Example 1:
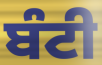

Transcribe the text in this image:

ਬੰਟੀ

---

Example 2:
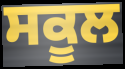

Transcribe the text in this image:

ਸਕੂਲ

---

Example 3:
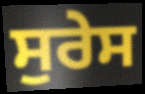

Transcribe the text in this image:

ਸੁਰੇਸ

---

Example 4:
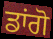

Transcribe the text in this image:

ਡਾਂਗੋ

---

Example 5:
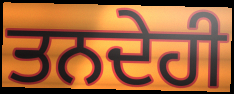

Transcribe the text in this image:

ਤਨਦੇਹੀ